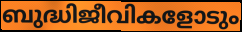
ബുദ്ധിജീവികളോടും